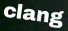
clang